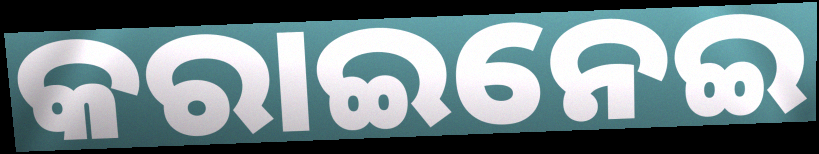
କରାଇନେଇ